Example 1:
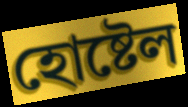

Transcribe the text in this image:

হোষ্টেল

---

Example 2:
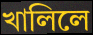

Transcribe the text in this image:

খালিলে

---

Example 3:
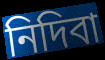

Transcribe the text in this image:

নিদিবা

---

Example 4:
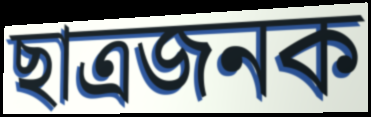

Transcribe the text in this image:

ছাত্ৰজনক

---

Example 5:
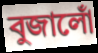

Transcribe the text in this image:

বুজালোঁ